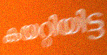
കയറ്റിയിട്ട